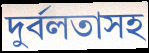
দুর্বলতাসহ